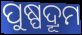
ପୁଷ୍ପଦ୍ରୂମ